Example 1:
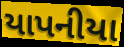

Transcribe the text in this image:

યાપનીયા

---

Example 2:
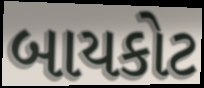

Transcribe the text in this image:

બાયકોટ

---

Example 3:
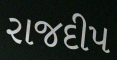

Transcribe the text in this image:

રાજદીપ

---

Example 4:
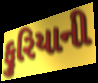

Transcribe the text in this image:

ફુરિયાની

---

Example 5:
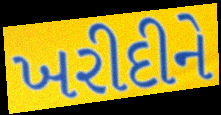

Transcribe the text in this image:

ખરીદીને